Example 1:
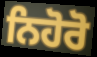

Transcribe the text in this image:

ਨਿਹੋਰੋ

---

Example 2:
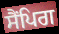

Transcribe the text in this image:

ਸੈਂਪਿਗ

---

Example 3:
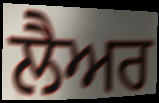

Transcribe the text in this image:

ਲੈਅਰ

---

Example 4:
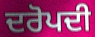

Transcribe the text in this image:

ਦਰੋਪਦੀ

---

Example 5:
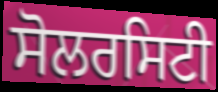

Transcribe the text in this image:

ਸੋਲਰਸਿਟੀ